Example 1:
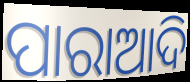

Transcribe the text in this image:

ପାରାଆଦି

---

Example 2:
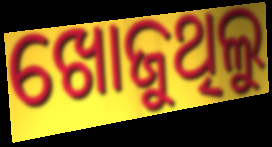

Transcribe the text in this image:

ଖୋଜୁଥିଲୁ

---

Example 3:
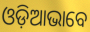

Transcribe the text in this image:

ଓଡ଼ିଆଭାବେ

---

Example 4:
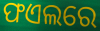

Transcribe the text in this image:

ଫଏଲରେ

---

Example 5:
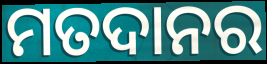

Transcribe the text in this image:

ମତଦାନର